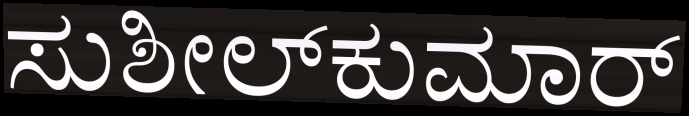
ಸುಶೀಲ್‌ಕುಮಾರ್